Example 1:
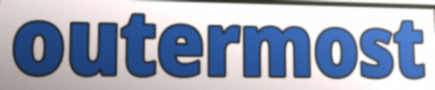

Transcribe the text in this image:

outermost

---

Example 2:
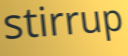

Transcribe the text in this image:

stirrup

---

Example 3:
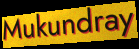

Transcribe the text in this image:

Mukundray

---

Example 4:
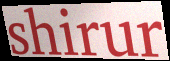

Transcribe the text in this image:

shirur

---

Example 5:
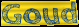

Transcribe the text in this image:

Goud